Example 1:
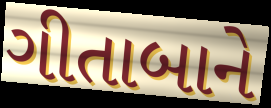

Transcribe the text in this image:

ગીતાબાને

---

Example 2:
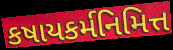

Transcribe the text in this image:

કષાયકર્મનિમિત્ત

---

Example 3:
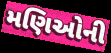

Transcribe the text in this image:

મણિઓની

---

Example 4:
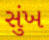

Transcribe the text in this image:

સુંખ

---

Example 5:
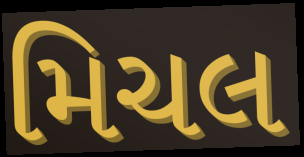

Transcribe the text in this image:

મિચલ